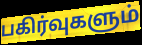
பகிர்வுகளும்